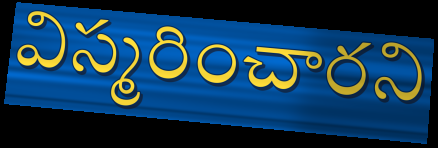
విస్మరించారని